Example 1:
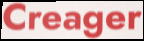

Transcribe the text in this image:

Creager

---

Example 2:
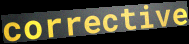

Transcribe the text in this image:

corrective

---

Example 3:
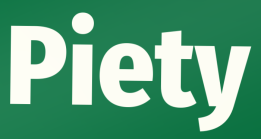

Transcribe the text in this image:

Piety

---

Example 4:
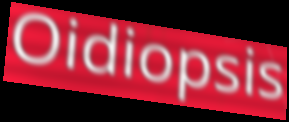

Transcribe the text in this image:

Oidiopsis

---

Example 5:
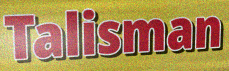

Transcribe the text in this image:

Talisman